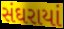
સંઘરાયાં